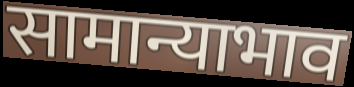
सामान्याभाव